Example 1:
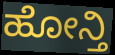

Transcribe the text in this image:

ಹೋನ್ತಿ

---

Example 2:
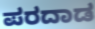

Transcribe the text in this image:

ಪರದಾಡ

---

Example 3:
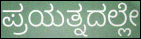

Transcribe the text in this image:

ಪ್ರಯತ್ನದಲ್ಲೇ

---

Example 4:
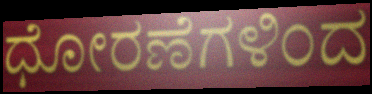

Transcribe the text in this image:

ಧೋರಣೆಗಳಿಂದ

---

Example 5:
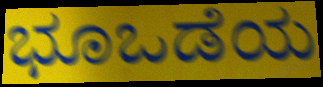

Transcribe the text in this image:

ಭೂಒಡೆಯ